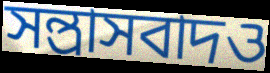
সন্ত্রাসবাদও